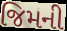
જિમની